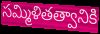
సమ్మిళితత్వానికి